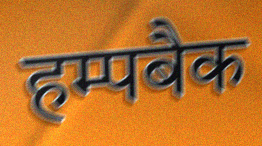
हम्पबैक